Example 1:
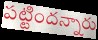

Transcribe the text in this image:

పట్టిందన్నారు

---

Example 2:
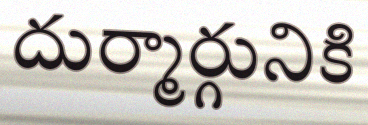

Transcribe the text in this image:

దుర్మార్గునికి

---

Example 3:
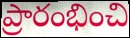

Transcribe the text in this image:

ప్రారంభించి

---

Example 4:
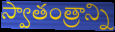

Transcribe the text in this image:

స్వాతంత్రాన్ని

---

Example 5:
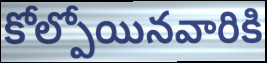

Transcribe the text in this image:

కోల్పోయినవారికి